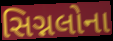
સિગ્નલોના